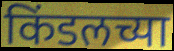
किंडलच्या